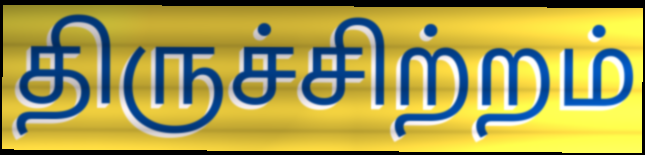
திருச்சிற்றம்